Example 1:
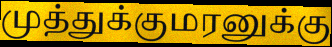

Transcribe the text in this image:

முத்துக்குமரனுக்கு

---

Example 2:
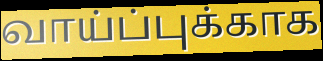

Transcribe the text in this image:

வாய்ப்புக்காக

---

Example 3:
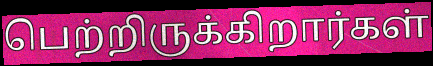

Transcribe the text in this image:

பெற்றிருக்கிறார்கள்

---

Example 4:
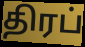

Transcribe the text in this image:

திரப்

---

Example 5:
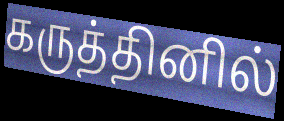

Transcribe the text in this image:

கருத்தினில்